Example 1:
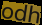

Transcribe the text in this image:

odh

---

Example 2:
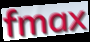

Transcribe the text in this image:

fmax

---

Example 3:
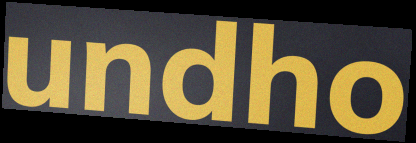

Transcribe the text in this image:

undho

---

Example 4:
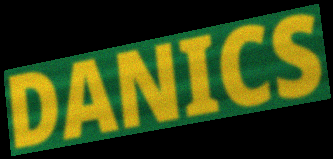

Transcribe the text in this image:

DANICS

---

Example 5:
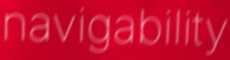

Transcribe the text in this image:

navigability